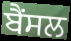
ਬੈਂਸਲ